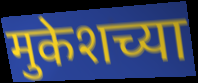
मुकेशच्या